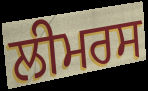
ਲੀਮਰਸ